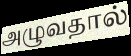
அழுவதால்